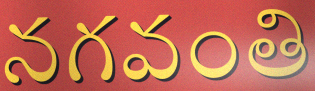
నగవంతి